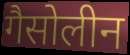
गैसोलीन